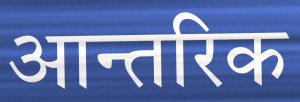
आन्तरिक